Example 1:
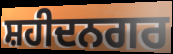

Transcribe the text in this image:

ਸ਼ਹੀਦਨਗਰ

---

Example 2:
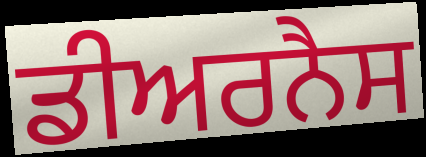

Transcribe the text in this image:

ਡੀਅਰਨੈਸ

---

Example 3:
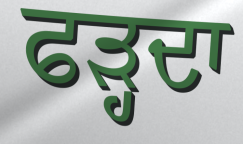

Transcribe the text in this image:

ਫੜ੍ਹਦਾ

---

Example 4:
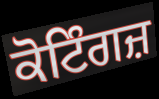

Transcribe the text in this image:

ਕੋਟਿੰਗਜ਼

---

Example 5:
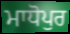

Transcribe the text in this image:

ਮਾਧੋਪੁਰ